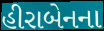
હીરાબેનના